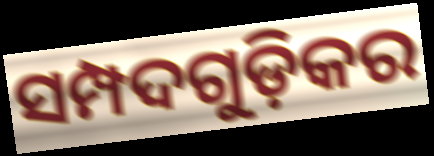
ସମ୍ପଦଗୁଡ଼ିକର